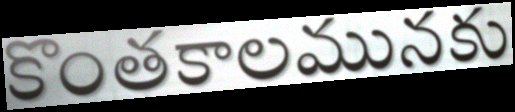
కొంతకాలమునకు